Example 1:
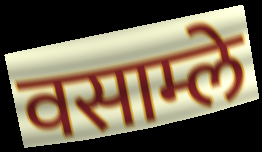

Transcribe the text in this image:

वसाम्ले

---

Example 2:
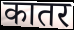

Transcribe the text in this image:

कातर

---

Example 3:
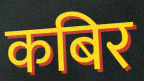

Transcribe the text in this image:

कबिर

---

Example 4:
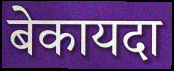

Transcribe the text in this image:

बेकायदा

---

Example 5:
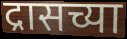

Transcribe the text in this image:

द्रासच्या